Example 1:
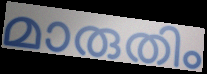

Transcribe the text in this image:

മാരുതിം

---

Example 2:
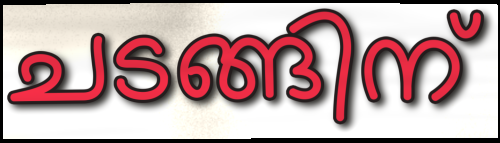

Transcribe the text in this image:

ചടങ്ങിന്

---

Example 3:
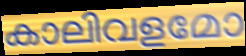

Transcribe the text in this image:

കാലിവളമോ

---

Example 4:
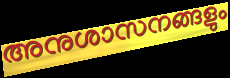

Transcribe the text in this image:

അനുശാസനങ്ങളും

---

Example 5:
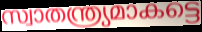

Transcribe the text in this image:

സ്വാതന്ത്ര്യമാകട്ടെ